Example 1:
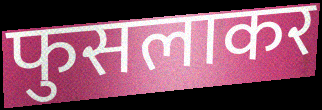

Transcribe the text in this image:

फुसलाकर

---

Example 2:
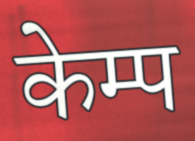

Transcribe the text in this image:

केम्प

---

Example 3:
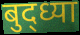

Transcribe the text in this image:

बुद्ध्या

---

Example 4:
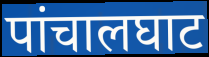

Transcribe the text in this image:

पांचालघाट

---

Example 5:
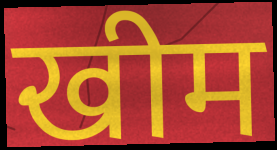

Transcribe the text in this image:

खीम